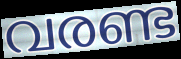
വരണ്ട